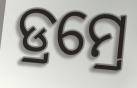
ଡ୍ରମ୍ରେ